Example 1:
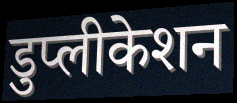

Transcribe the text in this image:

डुप्लीकेशन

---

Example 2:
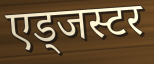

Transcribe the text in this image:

एड्जस्टर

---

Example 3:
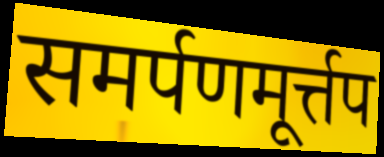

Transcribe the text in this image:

समर्पणमूर्त्तप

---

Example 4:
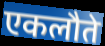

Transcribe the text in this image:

एकलौते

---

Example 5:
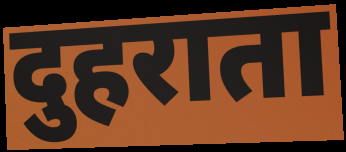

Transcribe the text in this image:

दुहराता